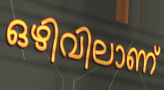
ഒഴിവിലാണ്